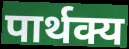
पार्थक्य